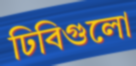
ঢিবিগুলো